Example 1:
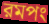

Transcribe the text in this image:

রমপং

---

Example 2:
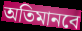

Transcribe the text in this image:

অতিমানবে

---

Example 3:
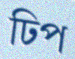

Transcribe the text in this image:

ঢিপ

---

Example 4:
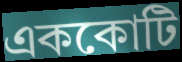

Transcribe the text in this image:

এককোটি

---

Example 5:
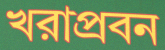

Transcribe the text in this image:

খরাপ্রবন